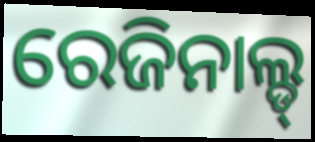
ରେଜିନାଲ୍ଡ୍